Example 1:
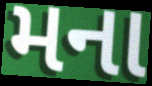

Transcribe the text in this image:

મના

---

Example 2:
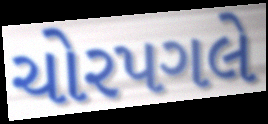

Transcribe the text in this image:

ચોરપગલે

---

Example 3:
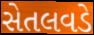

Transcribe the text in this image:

સેતલવડે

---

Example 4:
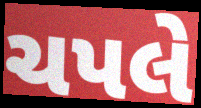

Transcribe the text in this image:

ચપલે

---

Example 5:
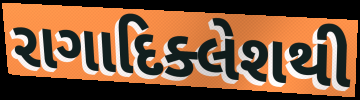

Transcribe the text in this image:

રાગાદિક્લેશથી